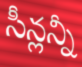
సీన్లన్నీ